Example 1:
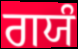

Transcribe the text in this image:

ਗਯੰ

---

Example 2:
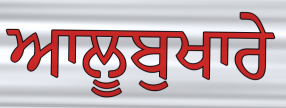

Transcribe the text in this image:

ਆਲੂਬੁਖਾਰੇ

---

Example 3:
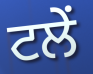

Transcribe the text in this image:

ਟਲੇਂ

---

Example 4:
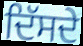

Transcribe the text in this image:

ਦਿੱਸਦੇ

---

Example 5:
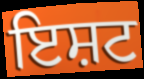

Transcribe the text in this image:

ਇਸ਼ਟ